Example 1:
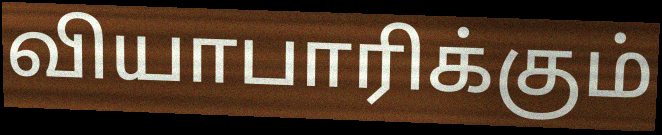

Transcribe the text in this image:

வியாபாரிக்கும்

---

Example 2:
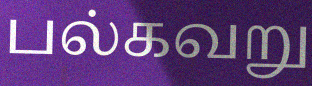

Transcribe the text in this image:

பல்கவறு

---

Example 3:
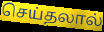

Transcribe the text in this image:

செய்தலால்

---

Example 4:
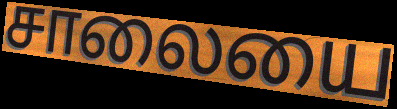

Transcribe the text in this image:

சாலையை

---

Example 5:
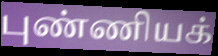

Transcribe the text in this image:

புண்ணியக்